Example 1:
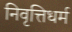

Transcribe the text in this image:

निवृत्तिधर्म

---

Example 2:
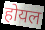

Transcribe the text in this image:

होयल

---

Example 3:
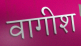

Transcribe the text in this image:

वागीश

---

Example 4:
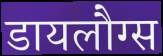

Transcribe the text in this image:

डायलौग्स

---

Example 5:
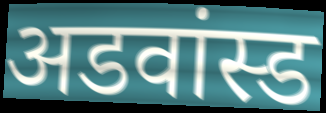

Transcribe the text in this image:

अडवांस्ड